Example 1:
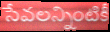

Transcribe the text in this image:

సేవలన్నింటికీ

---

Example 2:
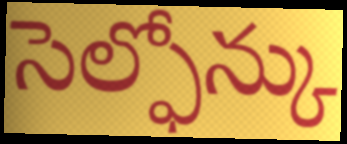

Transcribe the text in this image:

సెల్ఫోన్కు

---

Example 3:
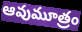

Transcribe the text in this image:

ఆవుమూత్రం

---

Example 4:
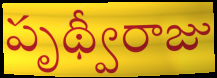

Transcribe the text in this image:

పృథ్వీరాజు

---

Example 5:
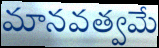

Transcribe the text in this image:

మానవత్వమే